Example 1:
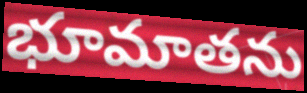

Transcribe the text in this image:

భూమాతను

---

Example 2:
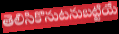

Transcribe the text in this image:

తెలిసికొనుటనుబట్టియే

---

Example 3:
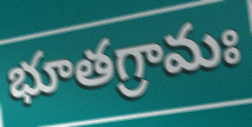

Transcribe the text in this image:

భూతగ్రామః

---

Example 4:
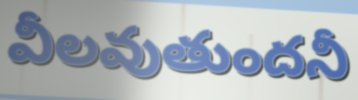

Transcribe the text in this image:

వీలవుతుందనీ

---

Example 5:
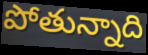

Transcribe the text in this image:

పోతున్నాది